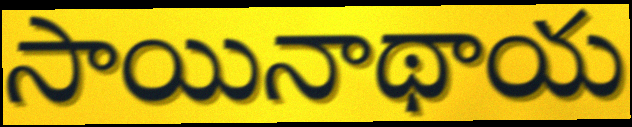
సాయినాథాయ